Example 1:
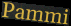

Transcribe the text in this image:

Pammi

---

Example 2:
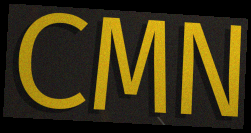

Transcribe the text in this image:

CMN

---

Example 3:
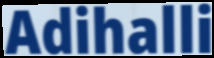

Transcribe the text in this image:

Adihalli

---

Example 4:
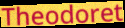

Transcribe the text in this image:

Theodoret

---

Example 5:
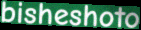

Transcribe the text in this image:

bisheshoto